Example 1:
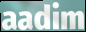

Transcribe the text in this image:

aadim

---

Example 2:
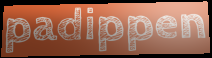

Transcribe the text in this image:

padippen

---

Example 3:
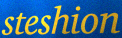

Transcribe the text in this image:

steshion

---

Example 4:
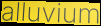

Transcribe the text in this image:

alluvium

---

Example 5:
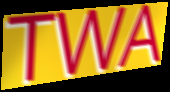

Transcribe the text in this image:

TWA